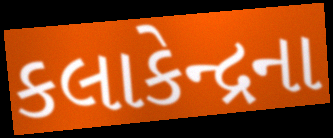
કલાકેન્દ્રના